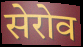
सेरोव